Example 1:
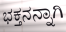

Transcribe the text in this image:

ಭಕ್ತನನ್ನಾಗಿ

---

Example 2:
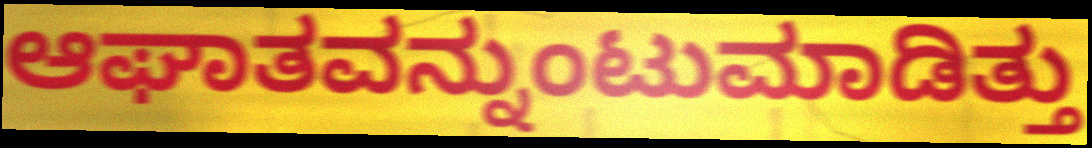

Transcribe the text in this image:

ಆಘಾತವನ್ನುಂಟುಮಾಡಿತ್ತು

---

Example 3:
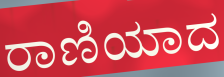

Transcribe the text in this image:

ರಾಣಿಯಾದ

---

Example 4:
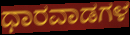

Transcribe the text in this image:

ಧಾರವಾಡಗಳ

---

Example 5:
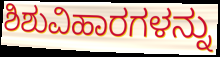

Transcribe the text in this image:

ಶಿಶುವಿಹಾರಗಳನ್ನು